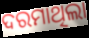
ଦରମାଥିଲା